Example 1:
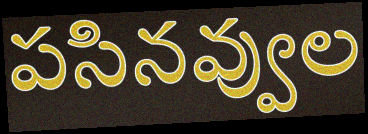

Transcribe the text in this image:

పసినవ్వుల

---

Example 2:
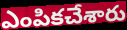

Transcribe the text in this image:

ఎంపికచేశారు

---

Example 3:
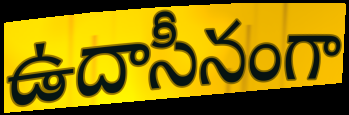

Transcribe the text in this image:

ఉదాసీనంగా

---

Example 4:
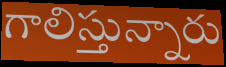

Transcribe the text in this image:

గాలిస్తున్నారు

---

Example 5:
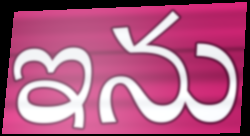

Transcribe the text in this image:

ఇను